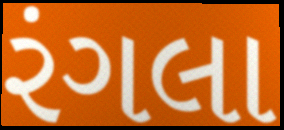
રંગલા